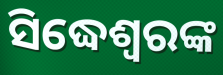
ସିଦ୍ଧେଶ୍ୱରଙ୍କ